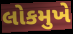
લોકમુખે